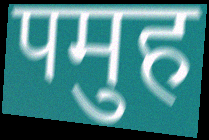
पमुह